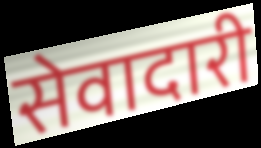
सेवादारी